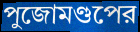
পুজোমণ্ডপের